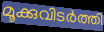
മൂക്കുവിടർത്തി